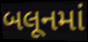
બલૂનમાં